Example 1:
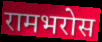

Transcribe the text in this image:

रामभरोस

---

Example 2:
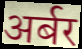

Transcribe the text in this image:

अर्बर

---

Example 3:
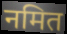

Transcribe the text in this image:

नमित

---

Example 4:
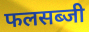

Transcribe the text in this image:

फलसब्जी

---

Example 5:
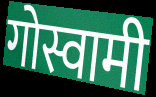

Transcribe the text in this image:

गोस्वामी